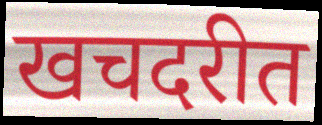
खचदरीत